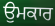
ਉਮਕਾਰ